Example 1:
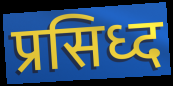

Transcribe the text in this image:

प्रसिध्द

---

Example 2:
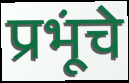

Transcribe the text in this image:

प्रभूंचे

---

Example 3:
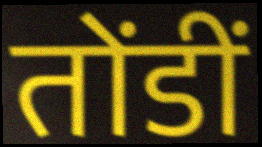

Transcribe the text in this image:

तोंडीं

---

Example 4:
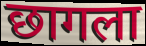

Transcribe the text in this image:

छागला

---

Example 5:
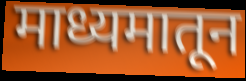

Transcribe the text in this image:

माध्यमातून